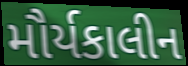
મૌર્યકાલીન